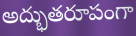
అద్భుతరూపంగా